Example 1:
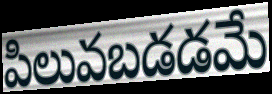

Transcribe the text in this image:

పిలువబడడమే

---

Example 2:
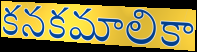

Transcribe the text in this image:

కనకమాలికా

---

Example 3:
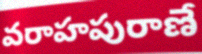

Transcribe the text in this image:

వరాహపురాణే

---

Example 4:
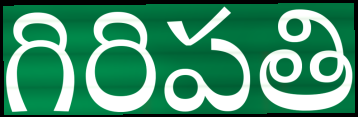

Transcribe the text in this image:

గిరిపతి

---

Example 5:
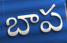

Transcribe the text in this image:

బాప